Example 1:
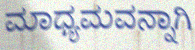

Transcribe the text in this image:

ಮಾಧ್ಯಮವನ್ನಾಗಿ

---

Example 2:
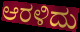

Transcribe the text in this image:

ಆರಳಿದು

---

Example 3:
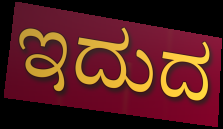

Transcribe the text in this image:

ಇದುದ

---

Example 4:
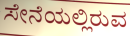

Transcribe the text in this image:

ಸೇನೆಯಲ್ಲಿರುವ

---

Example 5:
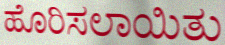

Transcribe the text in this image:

ಹೊರಿಸಲಾಯಿತು